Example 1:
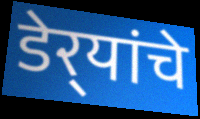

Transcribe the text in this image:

डेर्‍यांचे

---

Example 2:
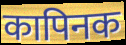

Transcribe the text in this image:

कापिनक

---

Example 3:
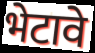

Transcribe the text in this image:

भेटावे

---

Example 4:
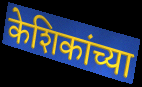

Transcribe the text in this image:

केशिकांच्या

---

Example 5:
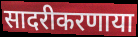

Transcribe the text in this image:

सादरीकरणाया